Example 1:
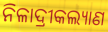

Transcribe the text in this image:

ନିଳାଦ୍ରୀକଲ୍ୟାଣ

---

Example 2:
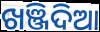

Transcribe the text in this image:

ଖଞ୍ଜିଦିଆ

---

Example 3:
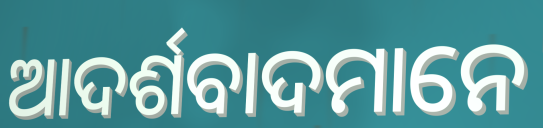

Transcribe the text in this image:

ଆଦର୍ଶବାଦମାନେ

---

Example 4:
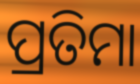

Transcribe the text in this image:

ପ୍ରତିମା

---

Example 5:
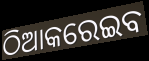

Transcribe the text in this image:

ଠିଆକରେଇବ